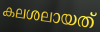
കലശലായത്